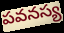
పవనస్య